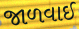
જાળવાઈ